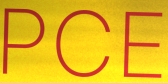
PCE